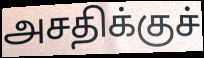
அசதிக்குச்